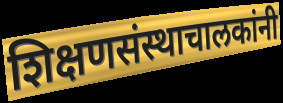
शिक्षणसंस्थाचालकांनी